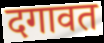
दगावत